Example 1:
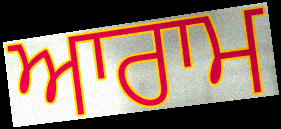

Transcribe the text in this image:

ਆਰਾਮ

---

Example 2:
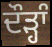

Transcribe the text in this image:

ਦੌੜ੍ਹਾੰ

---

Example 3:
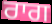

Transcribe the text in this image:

ਰਾਗ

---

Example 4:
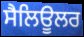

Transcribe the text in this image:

ਸੈਲਿਊਲਰ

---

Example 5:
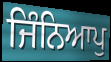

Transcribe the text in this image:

ਜਿੰਨਿਆਪੁ